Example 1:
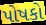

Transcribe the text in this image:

પોષકો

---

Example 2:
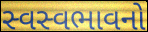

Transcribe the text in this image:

સ્વસ્વભાવનો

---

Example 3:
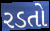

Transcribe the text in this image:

રડતો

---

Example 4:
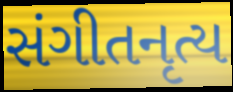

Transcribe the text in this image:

સંગીતનૃત્ય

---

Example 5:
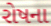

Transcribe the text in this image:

રોષના